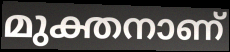
മുക്തനാണ്